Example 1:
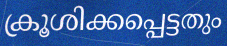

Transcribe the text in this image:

ക്രൂശിക്കപ്പെട്ടതും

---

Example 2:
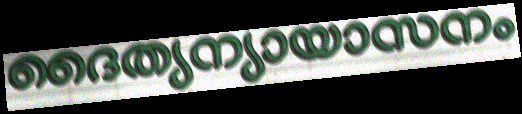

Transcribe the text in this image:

ദൈത്യന്യായാസനം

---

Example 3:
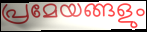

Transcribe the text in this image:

പ്രമേയങ്ങളും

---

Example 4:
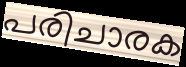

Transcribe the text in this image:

പരിചാരക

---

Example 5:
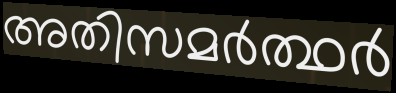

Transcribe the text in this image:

അതിസമർത്ഥർ